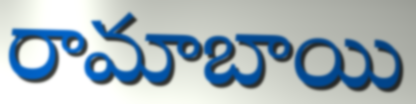
రామాబాయి